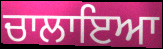
ਚਾਲਾਇਆ